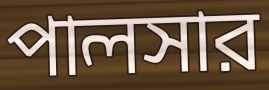
পালসার